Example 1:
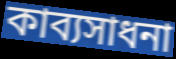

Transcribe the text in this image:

কাব্যসাধনা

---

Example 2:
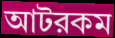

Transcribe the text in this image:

আটরকম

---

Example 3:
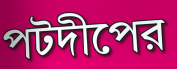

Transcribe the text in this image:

পটদীপের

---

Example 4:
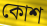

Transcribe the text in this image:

কোশ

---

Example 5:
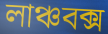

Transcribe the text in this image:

লাঞ্চবক্স